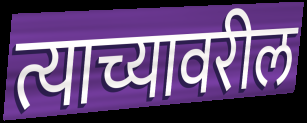
त्याच्यावरील